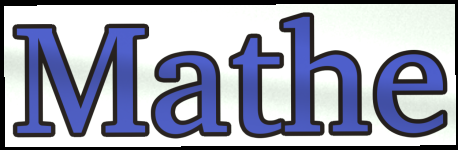
Mathe